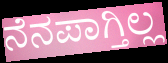
ನೆನಪಾಗ್ತಿಲ್ಲ